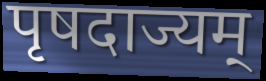
पृषदाज्यम्